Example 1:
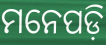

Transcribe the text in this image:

ମନେପଡ଼ି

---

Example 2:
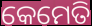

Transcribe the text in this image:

କେମେତି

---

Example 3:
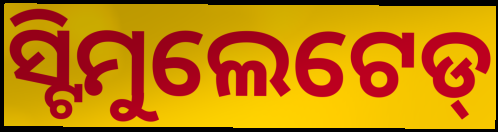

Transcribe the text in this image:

ସ୍ଟିମୁଲେଟେଡ୍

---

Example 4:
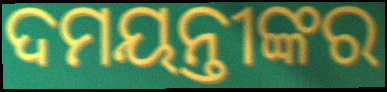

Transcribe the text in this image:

ଦମୟନ୍ତୀଙ୍କର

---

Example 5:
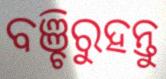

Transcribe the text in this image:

ବଞ୍ଚିରୁହନ୍ତୁ